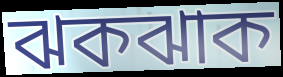
ঝকঝাক